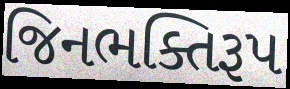
જિનભક્તિરૂપ